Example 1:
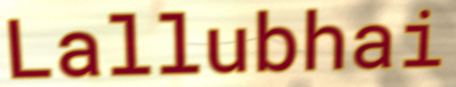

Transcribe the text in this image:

Lallubhai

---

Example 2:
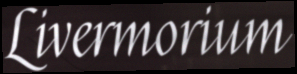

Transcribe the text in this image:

Livermorium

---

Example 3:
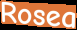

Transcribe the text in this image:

Rosea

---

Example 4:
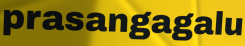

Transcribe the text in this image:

prasangagalu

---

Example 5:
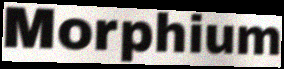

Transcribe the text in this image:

Morphium